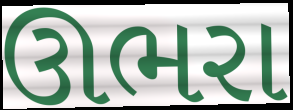
ઊભરા